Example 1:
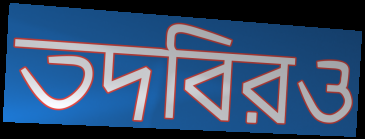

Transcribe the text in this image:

তদবিরও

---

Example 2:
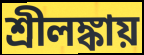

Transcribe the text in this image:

শ্রীলঙ্কায়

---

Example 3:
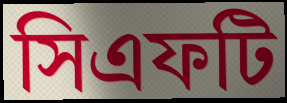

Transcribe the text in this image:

সিএফটি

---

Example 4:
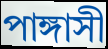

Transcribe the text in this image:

পাঙ্গাসী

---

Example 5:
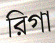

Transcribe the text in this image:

রিগা